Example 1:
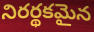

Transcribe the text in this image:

నిరర్థకమైన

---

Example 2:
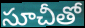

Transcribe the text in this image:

సూచీతో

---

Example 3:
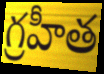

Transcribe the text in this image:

గ్రహీత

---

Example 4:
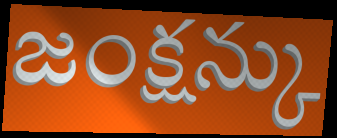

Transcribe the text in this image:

జంక్షన్కు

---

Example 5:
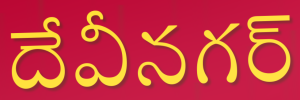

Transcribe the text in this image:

దేవీనగర్